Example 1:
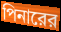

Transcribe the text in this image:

পিনারের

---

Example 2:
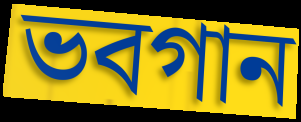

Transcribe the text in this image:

ভবগান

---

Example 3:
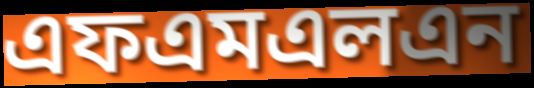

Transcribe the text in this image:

এফএমএলএন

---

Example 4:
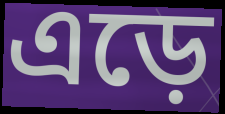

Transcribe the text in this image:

এড়ে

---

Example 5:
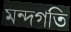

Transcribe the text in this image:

মন্দগতি